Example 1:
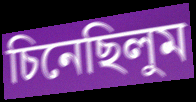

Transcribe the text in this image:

চিনেছিলুম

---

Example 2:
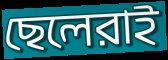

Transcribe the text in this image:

ছেলেরাই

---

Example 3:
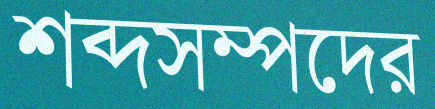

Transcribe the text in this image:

শব্দসম্পদের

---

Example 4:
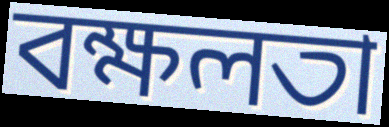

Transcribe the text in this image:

বক্ষলতা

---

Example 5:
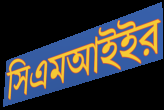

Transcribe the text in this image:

সিএমআইইর